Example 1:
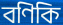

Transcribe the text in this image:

বণিকি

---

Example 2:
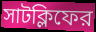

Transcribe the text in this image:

সাটক্লিফের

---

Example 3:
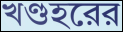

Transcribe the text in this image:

খণ্ডহরের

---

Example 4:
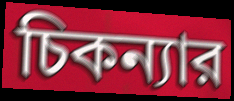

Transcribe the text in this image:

চিকন্যার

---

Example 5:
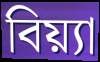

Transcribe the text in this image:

বিয়্যা